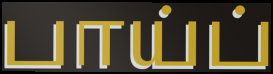
பாய்ப்